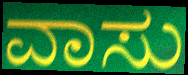
ವಾಸು